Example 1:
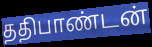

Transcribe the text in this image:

ததிபாண்டன்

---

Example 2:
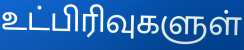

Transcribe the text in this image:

உட்பிரிவுகளுள்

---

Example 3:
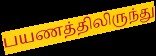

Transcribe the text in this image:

பயணத்திலிருந்து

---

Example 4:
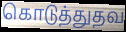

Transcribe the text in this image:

கொடுத்துதவ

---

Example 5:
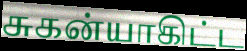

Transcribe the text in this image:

சுகன்யாகிட்ட